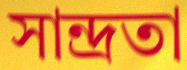
সান্দ্ৰতা